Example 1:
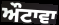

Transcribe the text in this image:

ਔਟਾਵਾ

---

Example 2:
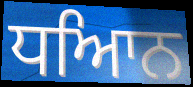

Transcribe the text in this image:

ਧਆਿਨ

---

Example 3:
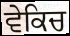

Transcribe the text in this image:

ਵੇਕਿਚ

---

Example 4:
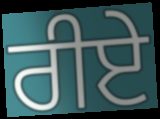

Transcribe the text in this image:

ਰੀਏ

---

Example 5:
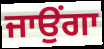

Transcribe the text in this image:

ਜਾਉਂਗਾ